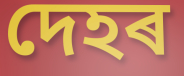
দেহৰ